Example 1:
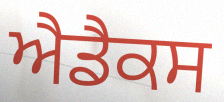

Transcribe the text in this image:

ਐਡੈਕਸ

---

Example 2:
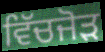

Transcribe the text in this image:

ਵਿੱਚਜੋੜ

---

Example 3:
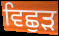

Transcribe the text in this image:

ਵਿਛੁੜ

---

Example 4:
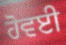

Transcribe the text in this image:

ਹੋਵਈ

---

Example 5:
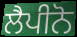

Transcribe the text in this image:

ਲੈਪੀਨੋ